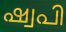
ഷ്വപി